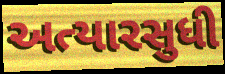
અત્યારસુધી